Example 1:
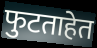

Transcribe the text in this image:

फुटताहेत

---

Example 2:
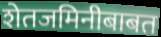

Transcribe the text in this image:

शेतजमिनीबाबत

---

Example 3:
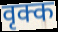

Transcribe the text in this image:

वृक्क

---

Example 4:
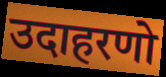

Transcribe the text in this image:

उदाहरणो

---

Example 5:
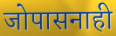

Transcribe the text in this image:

जोपासनाही